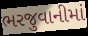
ભરજુવાનીમાં